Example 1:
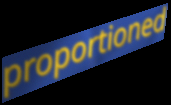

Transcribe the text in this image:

proportioned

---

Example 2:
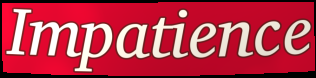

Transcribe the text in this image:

Impatience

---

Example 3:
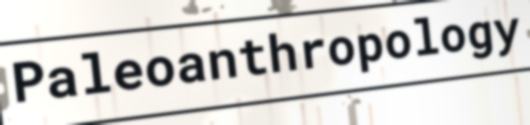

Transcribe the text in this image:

Paleoanthropology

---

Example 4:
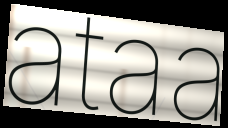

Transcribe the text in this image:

ataa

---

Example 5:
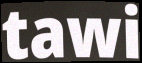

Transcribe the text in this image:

tawi